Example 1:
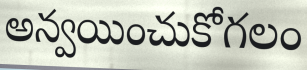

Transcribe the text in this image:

అన్వయించుకోగలం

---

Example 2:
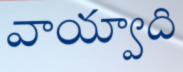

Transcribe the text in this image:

వాయ్వాది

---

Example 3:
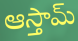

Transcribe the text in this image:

ఆస్తామ్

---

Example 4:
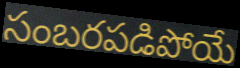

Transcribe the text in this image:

సంబరపడిపోయే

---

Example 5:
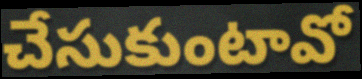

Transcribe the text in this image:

చేసుకుంటావో